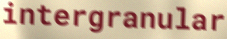
intergranular